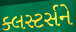
ક્લસ્ટર્સને